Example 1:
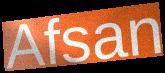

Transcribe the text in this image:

Afsan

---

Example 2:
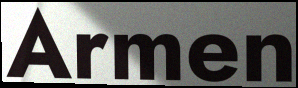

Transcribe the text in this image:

Armen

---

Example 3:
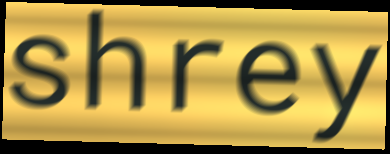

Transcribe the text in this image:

shrey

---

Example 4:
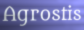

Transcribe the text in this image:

Agrostis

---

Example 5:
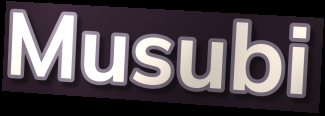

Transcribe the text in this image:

Musubi